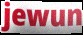
jewun